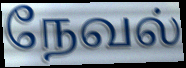
நேவல்